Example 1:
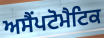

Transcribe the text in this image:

ਅਸੈਂਪਟੋਮੈਟਿਕ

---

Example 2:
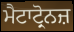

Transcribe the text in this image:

ਮੈਟਾਟ੍ਰੋਨਜ਼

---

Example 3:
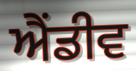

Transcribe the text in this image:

ਐਂਡੀਵ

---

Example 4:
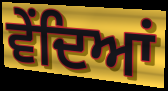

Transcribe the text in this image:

ਵੇਂਦਿਆਂ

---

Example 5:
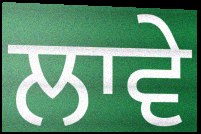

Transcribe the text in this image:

ਲਾਵੇ